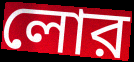
লোর